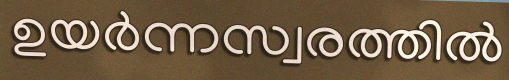
ഉയർന്നസ്വരത്തിൽ